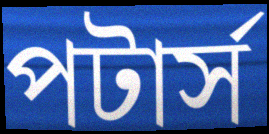
পটার্স